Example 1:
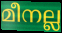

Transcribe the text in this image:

മീനല്ല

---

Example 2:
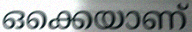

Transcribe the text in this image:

ഒക്കെയാണ്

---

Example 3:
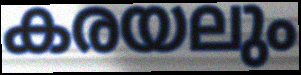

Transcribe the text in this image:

കരയലും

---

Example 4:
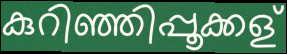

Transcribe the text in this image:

കുറിഞ്ഞിപ്പൂക്കള്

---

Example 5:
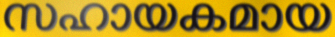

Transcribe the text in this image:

സഹായകമായ